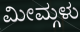
ಮೀಮ್ಗಳು